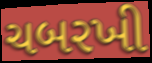
ચબરખી